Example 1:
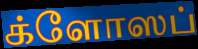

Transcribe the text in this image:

க்ளோஸப்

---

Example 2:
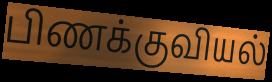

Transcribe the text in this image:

பிணக்குவியல்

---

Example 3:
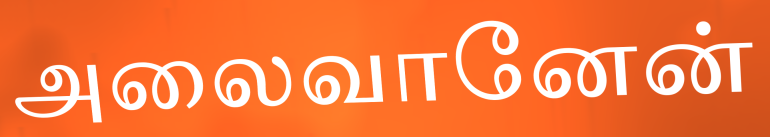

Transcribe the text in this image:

அலைவானேன்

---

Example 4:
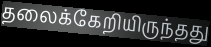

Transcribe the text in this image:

தலைக்கேறியிருந்தது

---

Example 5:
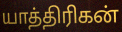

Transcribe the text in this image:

யாத்திரிகன்